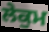
ਲੇਕੁਮ